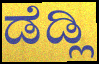
ಡೆಡ್ಲಿ